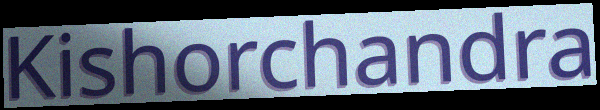
Kishorchandra